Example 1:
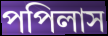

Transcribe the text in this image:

পপিলাস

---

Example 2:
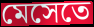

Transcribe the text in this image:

মেসেতে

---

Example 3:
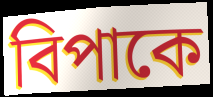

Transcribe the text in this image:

বিপাকে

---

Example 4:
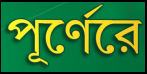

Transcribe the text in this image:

পূর্ণেরে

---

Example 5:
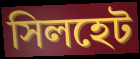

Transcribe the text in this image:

সিলহেট